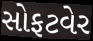
સોફટવેર